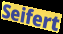
Seifert